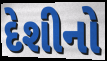
દેશીનો